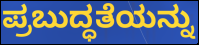
ಪ್ರಬುದ್ಧತೆಯನ್ನು